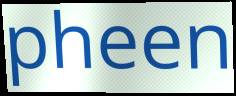
pheen